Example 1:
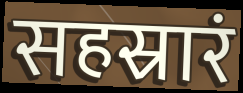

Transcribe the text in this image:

सहस्रारं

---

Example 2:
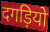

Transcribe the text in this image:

दगड़ियो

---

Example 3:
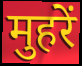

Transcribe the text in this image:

मुहरें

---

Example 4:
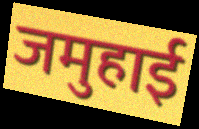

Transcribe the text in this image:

जमुहाई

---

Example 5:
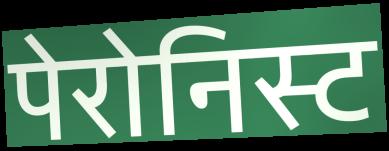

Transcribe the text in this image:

पेरोनिस्ट